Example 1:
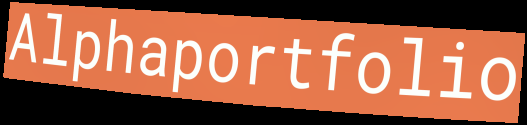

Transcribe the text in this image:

Alphaportfolio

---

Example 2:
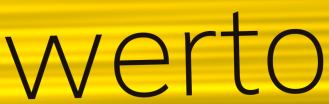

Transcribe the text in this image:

werto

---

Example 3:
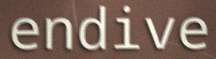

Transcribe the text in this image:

endive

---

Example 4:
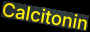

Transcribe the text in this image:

Calcitonin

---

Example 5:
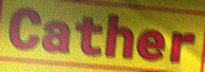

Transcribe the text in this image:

Cather